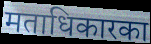
मताधिकारका